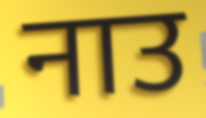
नाउ